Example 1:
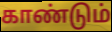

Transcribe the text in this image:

காண்டும்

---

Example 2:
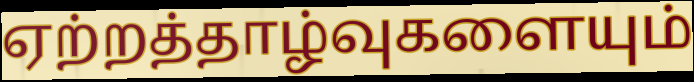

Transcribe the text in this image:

ஏற்றத்தாழ்வுகளையும்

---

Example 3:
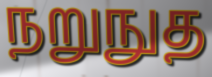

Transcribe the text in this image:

நறுநுத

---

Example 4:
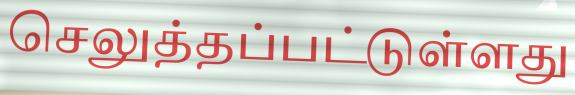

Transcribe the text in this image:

செலுத்தப்பட்டுள்ளது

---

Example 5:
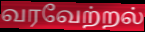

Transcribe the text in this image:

வரவேற்றல்